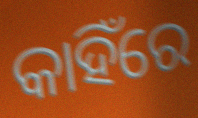
କାହିଁରେ